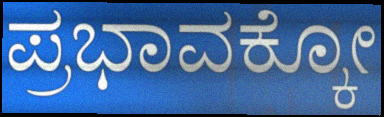
ಪ್ರಭಾವಕ್ಕೋ